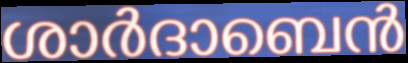
ശാർദാബെൻ